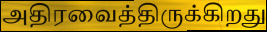
அதிரவைத்திருக்கிறது